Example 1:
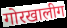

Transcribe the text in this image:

गोरखालीग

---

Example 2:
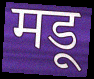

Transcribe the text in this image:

मडू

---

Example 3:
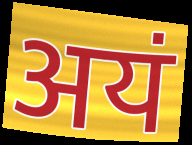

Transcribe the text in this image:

अयं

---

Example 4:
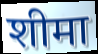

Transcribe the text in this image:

शीमा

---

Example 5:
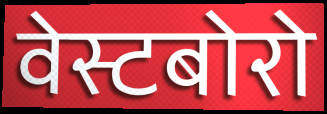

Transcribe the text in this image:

वेस्टबोरो